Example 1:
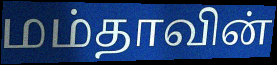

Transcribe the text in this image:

மம்தாவின்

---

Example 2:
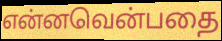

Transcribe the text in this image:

என்னவென்பதை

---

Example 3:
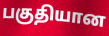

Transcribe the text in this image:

பகுதியான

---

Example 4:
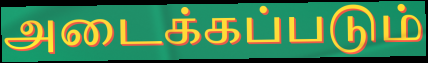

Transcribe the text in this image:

அடைக்கப்படும்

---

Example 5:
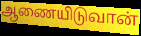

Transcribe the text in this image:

ஆணையிடுவான்